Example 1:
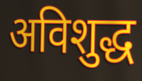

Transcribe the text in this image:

अविशुद्ध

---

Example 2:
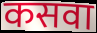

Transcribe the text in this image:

कसवा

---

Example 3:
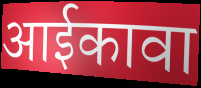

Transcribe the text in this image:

आईकावा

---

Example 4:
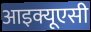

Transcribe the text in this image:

आइक्यूएसी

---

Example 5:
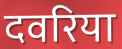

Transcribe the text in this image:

दवरिया